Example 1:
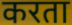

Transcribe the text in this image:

करता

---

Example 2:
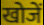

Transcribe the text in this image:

खोजें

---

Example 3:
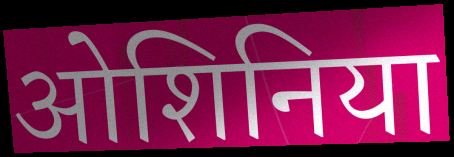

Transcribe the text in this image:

ओशिनिया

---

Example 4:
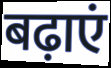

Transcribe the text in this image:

बढ़ाएं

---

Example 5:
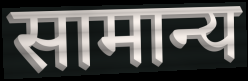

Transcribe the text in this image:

सामान्य